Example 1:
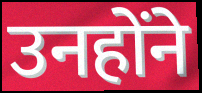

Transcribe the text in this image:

उनहोंने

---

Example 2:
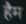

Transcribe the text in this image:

हैम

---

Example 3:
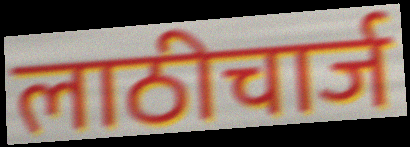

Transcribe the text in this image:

लाठीचार्ज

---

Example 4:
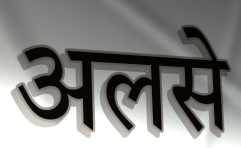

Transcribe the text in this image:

अलसे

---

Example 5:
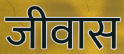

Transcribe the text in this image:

जीवास